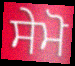
ਸੇਮੋ